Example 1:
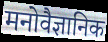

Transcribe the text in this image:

मनोवैज्ञानिक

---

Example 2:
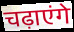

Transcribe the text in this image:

चढ़ाएंगे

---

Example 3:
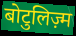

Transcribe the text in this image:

बोटुलिज़्म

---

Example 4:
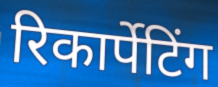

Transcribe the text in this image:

रिकार्पेटिंग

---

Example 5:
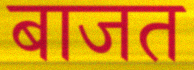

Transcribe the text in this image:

बाजत